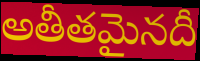
అతీతమైనదీ